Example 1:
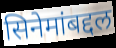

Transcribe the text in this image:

सिनेमांबद्दल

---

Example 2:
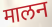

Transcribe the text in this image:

मालन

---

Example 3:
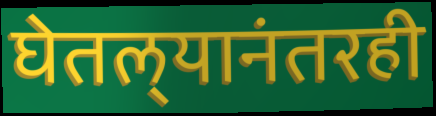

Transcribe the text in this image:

घेतल्यानंतरही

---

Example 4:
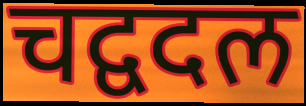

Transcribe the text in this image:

चद्वदल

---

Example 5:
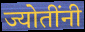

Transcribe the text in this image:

ज्योतींनी